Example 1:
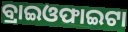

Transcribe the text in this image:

ବ୍ରାଇଓଫାଇଟା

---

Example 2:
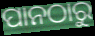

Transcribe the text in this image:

ପାନଠାରୁ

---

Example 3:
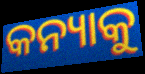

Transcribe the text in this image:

କନ୍ୟାକୁ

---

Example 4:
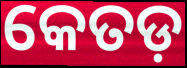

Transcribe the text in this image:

କେତଡ଼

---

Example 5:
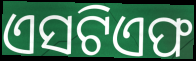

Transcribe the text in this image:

ଏସଟିଏଫ